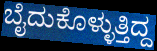
ಬೈದುಕೊಳ್ಳುತ್ತಿದ್ದ